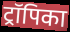
ट्रॉपिका